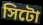
সিটো